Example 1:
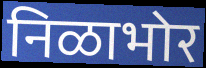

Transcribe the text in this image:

निळाभोर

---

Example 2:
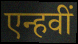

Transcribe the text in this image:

एन्हवीं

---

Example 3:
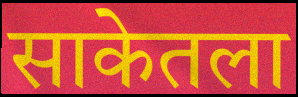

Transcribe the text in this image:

साकेतला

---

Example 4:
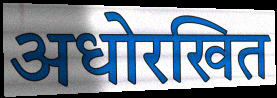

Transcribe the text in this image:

अधोरखित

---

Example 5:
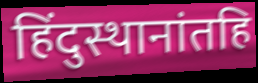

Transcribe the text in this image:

हिंदुस्थानांतहि